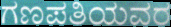
ಗಣಪತಿಯವರ